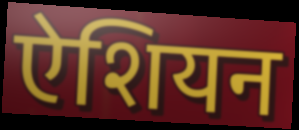
ऐशियन